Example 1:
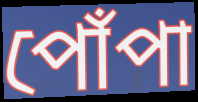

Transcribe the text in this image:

পোঁপা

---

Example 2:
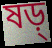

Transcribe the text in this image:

ষড়্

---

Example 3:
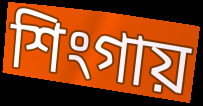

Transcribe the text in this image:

শিংগায়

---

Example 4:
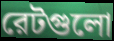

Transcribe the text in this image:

রেটগুলো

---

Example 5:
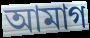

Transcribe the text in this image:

আমাগ